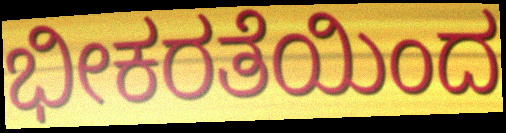
ಭೀಕರತೆಯಿಂದ